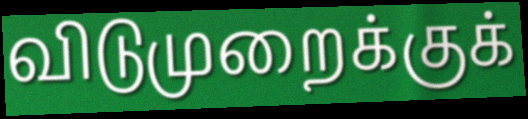
விடுமுறைக்குக்